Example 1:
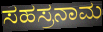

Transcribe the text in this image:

ಸಹಸ್ರನಾಮ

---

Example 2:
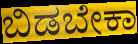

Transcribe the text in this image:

ಬಿಡಬೇಕಾ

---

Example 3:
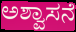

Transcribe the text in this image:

ಅಶ್ವಾಸನೆ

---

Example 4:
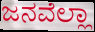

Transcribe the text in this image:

ಜನವೆಲ್ಲಾ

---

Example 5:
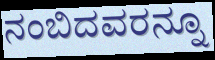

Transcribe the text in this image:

ನಂಬಿದವರನ್ನೂ